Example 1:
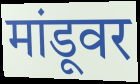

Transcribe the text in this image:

मांडूवर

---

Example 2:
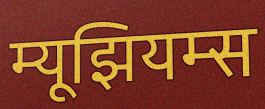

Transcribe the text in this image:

म्यूझियम्स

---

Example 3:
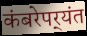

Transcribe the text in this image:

कंबरेपर्यंत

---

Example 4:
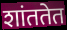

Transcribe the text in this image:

शांततेत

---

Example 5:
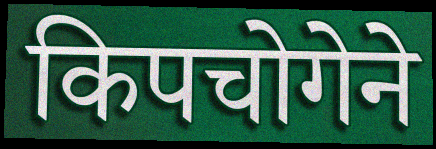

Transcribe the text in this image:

किपचोगेने